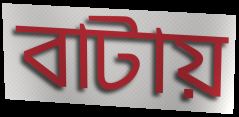
বাটায়